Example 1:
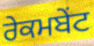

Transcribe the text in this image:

ਰੇਕਮਬੇਂਟ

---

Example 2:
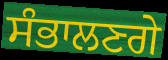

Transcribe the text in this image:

ਸੰਭਾਲਣਗੇ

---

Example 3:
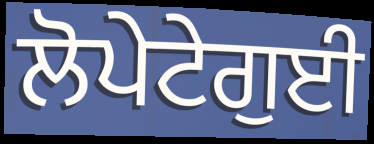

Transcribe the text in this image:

ਲੋਪੇਟੇਗੁਈ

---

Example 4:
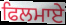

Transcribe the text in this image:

ਫਿਲਮਾਏ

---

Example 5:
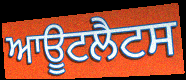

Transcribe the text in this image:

ਆਊਟਲੈਟਸ